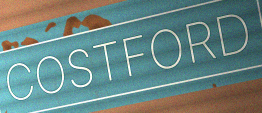
COSTFORD